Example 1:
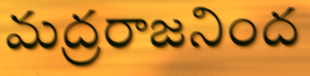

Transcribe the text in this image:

మద్రరాజనింద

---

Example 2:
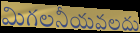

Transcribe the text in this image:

మిగలనీయవలదు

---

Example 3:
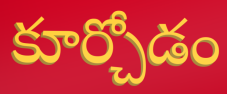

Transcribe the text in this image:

కూర్చోడం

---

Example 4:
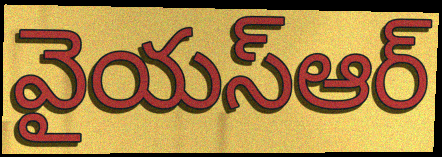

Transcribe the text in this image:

వైయస్ఆర్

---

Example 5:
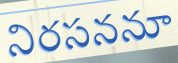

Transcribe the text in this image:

నిరసననూ